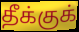
தீக்குக்